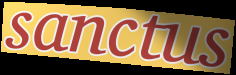
sanctus